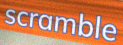
scramble